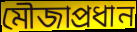
মৌজাপ্রধান